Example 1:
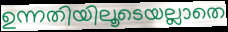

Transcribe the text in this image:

ഉന്നതിയിലൂടെയല്ലാതെ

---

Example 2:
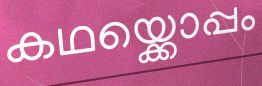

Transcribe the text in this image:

കഥയ്ക്കൊപ്പം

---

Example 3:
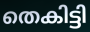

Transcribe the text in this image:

തെകിട്ടി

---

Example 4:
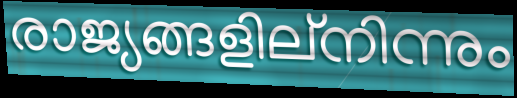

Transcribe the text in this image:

രാജ്യങ്ങളില്നിന്നും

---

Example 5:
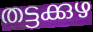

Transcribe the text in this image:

തട്ടക്കുഴ